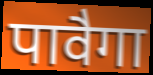
पावैगा